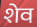
शेव